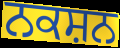
ਨਕਸ਼ਨ